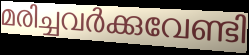
മരിച്ചവർക്കുവേണ്ടി